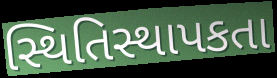
સ્થિતિસ્થાપકતા